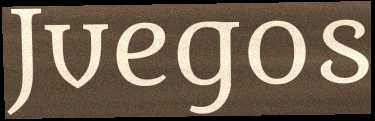
Juegos